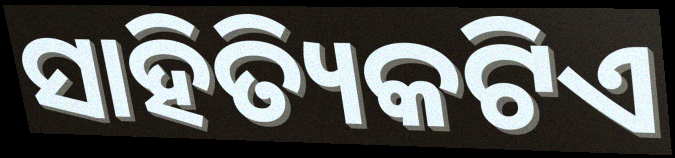
ସାହିତ୍ୟିକଟିଏ